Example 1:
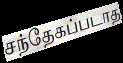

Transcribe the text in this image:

சந்தேகப்படாத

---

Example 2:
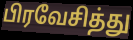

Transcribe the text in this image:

பிரவேசித்து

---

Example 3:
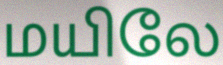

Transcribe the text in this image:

மயிலே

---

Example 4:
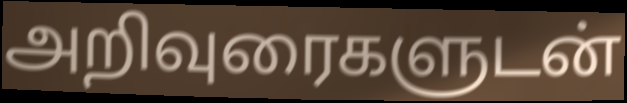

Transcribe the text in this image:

அறிவுரைகளுடன்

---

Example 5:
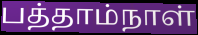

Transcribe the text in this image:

பத்தாம்நாள்